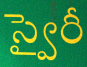
స్వైరీ